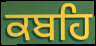
ਕਬਹਿ